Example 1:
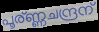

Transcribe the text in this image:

പൂര്ണ്ണചന്ദ്രന്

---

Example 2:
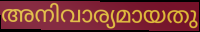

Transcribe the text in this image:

അനിവാര്യമായതു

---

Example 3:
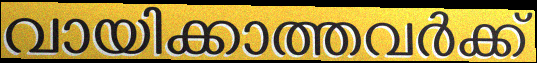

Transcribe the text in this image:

വായിക്കാത്തവർക്ക്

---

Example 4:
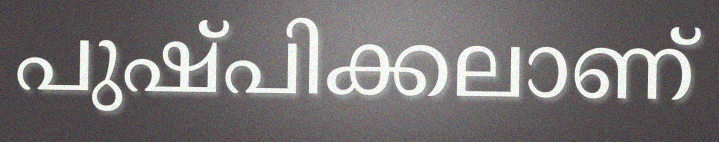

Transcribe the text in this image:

പുഷ്പിക്കലാണ്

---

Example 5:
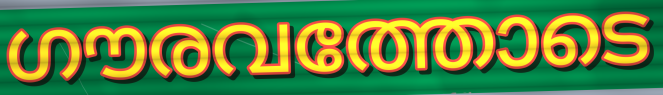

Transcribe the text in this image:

ഗൗരവത്തോടെ